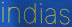
indias